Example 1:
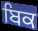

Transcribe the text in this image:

ਬਿਕ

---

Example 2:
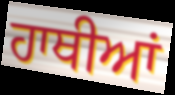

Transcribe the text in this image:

ਹਾਥੀਆਂ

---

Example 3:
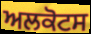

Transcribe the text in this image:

ਅਲਕੋਟਸ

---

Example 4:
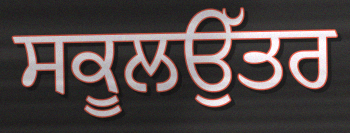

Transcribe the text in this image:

ਸਕੂਲਉੱਤਰ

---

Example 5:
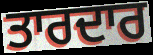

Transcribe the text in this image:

ਤਾਰਦਾਰ